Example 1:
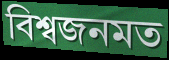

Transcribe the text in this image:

বিশ্বজনমত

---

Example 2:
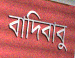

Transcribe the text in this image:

বাদিবাবু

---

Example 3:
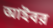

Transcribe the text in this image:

আইবর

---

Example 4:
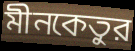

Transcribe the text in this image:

মীনকেতুর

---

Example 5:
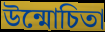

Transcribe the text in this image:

উন্মোচিতা